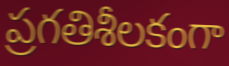
ప్రగతిశీలకంగా